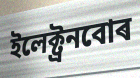
ইলেক্ট্ৰনবোৰ